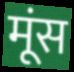
मूंस